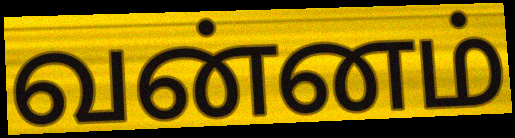
வன்னம்